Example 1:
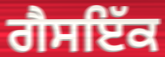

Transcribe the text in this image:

ਗੈਸਇੱਕ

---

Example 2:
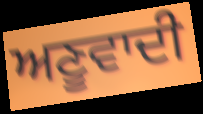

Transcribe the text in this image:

ਅਣੂਵਾਦੀ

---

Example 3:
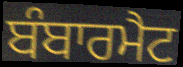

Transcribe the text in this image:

ਬੰਬਾਰਮੈਟ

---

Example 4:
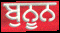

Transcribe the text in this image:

ਬੁਨੂਨ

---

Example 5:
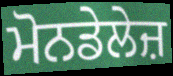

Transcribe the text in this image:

ਮੋਨਡੇਲੇਜ਼